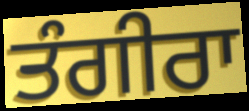
ਤੰਗੀਰਾ